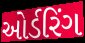
ઓર્ડરિંગ